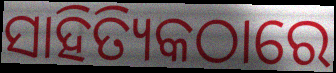
ସାହିତ୍ୟିକଠାରେ